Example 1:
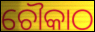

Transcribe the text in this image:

ଚୌକାଠ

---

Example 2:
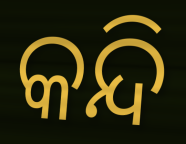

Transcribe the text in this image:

କନ୍ଦି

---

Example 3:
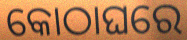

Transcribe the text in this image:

କୋଠାଘରେ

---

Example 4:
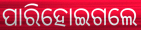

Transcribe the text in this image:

ପାରିହୋଇଗଲେ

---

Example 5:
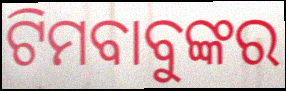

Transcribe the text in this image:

ଟିମବାବୁଙ୍କର